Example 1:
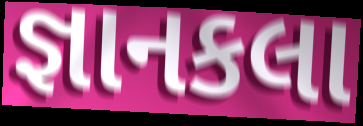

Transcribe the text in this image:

જ્ઞાનકલા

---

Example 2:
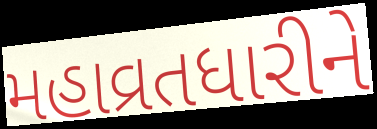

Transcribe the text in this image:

મહાવ્રતધારીને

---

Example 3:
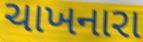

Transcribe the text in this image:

ચાખનારા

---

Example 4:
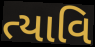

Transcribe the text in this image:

ત્યાવિ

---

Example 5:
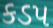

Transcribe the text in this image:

કડપ